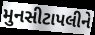
મુનસીટાપલીને